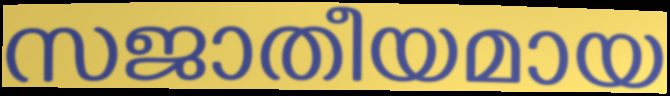
സജാതീയമായ